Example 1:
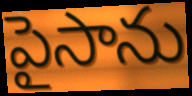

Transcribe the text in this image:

పైసాను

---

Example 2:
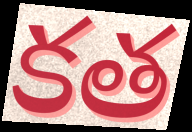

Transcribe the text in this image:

కత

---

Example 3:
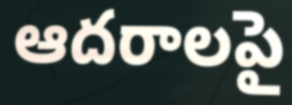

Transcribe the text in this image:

ఆదరాలపై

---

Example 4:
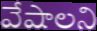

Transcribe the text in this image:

వేషాలని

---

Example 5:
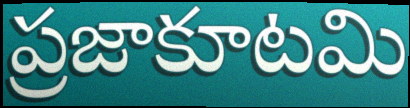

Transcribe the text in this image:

ప్రజాకూటమి